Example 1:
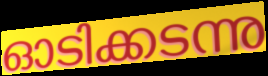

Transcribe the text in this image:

ഓടിക്കടന്നു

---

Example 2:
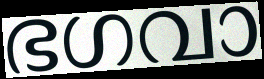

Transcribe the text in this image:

ഭഗവാ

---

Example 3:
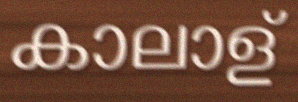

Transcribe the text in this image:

കാലാള്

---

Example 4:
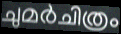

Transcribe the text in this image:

ചുമർചിത്രം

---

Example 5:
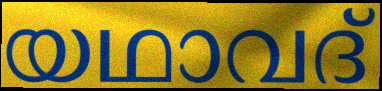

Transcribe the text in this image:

യഥാവദ്